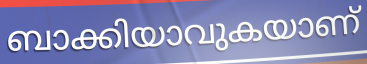
ബാക്കിയാവുകയാണ്